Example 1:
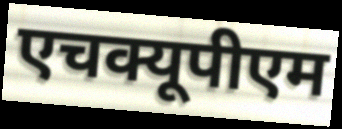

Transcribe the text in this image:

एचक्यूपीएम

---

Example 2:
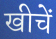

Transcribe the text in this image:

खीचें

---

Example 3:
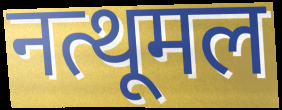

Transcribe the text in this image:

नत्थूमल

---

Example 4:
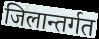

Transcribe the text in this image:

जिलान्तर्गत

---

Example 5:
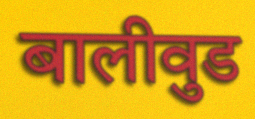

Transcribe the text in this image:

बालीवुड